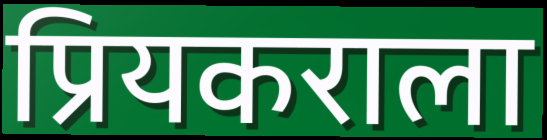
प्रियकराला